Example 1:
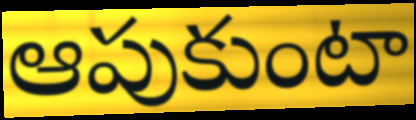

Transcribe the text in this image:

ఆపుకుంటా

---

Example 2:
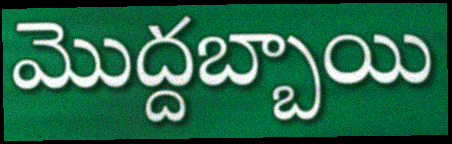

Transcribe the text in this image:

మొద్దబ్బాయి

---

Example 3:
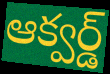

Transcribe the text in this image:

ఆక్వర్డ్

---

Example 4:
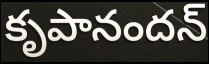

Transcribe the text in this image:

కృపానందన్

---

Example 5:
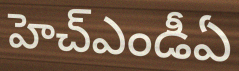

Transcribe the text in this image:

హెచ్ఎండీఏ